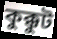
কুক্কুট